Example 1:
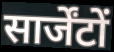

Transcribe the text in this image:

सार्जेंटों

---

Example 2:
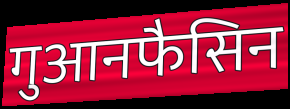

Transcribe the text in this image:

गुआनफैसिन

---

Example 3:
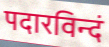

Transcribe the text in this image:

पदारविन्दं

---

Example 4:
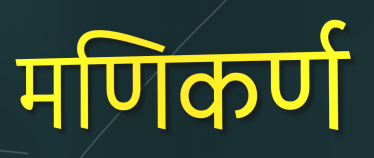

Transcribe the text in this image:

मणिकर्ण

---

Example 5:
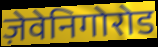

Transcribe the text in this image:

ज़ेवेनिगोरोड